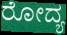
ರೋದ್ಯ